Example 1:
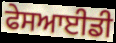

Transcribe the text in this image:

ਫੇਸਆਈਡੀ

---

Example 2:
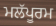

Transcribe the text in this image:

ਮਲੱਪੂਰਮ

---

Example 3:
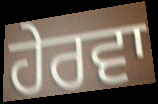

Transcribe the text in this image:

ਹੇਰਵਾ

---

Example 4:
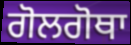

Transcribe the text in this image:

ਗੋਲਗੋਥਾ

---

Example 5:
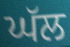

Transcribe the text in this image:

ਘੱਲ